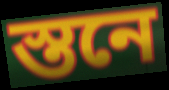
স্তনে